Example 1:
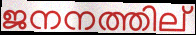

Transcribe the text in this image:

ജനനത്തില്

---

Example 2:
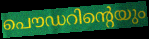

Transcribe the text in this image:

പൌഡറിന്റെയും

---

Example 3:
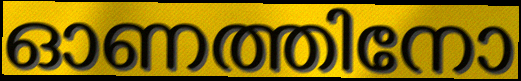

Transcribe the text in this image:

ഓണത്തിനോ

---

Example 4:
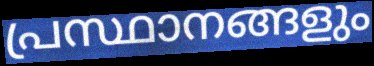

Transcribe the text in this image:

പ്രസ്ഥാനങ്ങളും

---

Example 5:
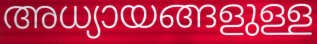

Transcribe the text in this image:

അധ്യായങ്ങളുള്ള